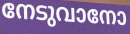
നേടുവാനോ